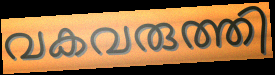
വകവരുത്തി